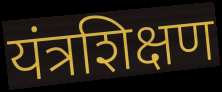
यंत्रशिक्षण